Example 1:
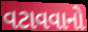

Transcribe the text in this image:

વટાવવાનો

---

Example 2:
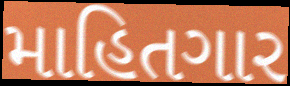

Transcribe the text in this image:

માહિતગાર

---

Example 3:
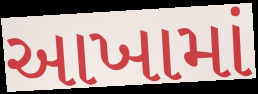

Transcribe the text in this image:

આખામાં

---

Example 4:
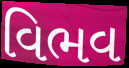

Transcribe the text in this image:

વિભવ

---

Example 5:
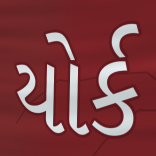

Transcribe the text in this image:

યોર્ક